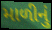
માળીનું